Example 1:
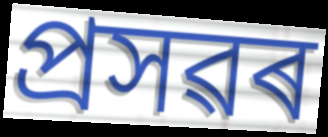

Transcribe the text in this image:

প্ৰসৱৰ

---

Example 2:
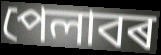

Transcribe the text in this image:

পেলাবৰ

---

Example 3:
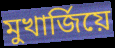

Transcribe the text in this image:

মুখাৰ্জিয়ে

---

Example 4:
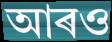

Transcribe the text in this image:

আৰও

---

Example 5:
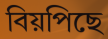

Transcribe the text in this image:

বিয়পিছে